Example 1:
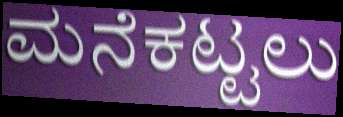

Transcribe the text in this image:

ಮನೆಕಟ್ಟಲು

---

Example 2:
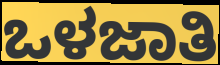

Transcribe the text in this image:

ಒಳಜಾತಿ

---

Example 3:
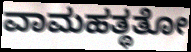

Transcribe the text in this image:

ವಾಮಹತ್ಥತೋ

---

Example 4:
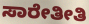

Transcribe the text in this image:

ಸಾರೇತೀತಿ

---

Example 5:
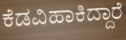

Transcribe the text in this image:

ಕೆಡವಿಹಾಕಿದ್ದಾರೆ